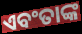
ଏବଂତାଙ୍କ